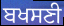
ਬਖਸਣੀ